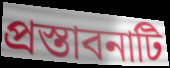
প্রস্তাবনাটি